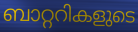
ബാറ്ററികളുടെ